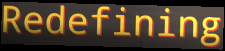
Redefining